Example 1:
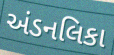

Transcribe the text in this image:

અંડનલિકા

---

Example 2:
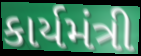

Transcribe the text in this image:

કાર્યમંત્રી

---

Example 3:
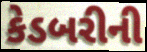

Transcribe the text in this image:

કેડબરીની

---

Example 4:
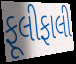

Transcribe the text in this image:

ફૂલીફાલી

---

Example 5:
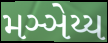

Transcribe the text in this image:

મઞ્ઞેય્ય